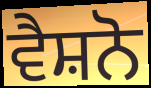
ਵੈਸ਼ਨੋ